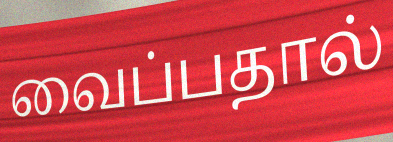
வைப்பதால்